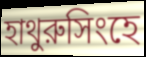
হাথুরুসিংহে